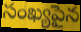
సంఖ్యపైన